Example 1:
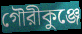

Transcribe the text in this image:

গৌরীকুঞ্জে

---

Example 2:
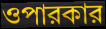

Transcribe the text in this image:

ওপারকার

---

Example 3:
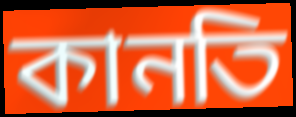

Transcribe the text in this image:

কানতি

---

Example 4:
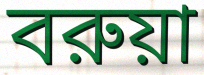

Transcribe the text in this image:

বরুয়া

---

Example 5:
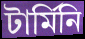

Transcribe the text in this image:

টার্মিনি